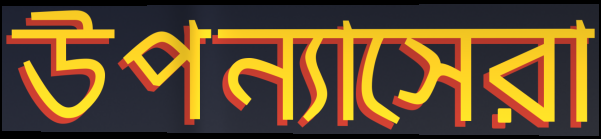
উপন্যাসেরা